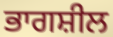
ਭਾਗਸ਼ੀਲ